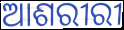
ଆଶରୀରୀ